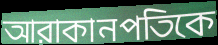
আরাকানপতিকে